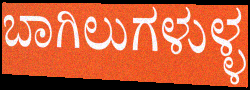
ಬಾಗಿಲುಗಳುಳ್ಳ